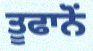
ਤੂਫਾਨੋਂ